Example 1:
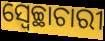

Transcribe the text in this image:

ସ୍ୱେଚ୍ଛାଚାରୀ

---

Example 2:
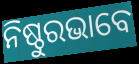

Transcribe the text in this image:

ନିଷ୍ଠୁରଭାବେ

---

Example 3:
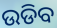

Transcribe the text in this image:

ଉଡିବ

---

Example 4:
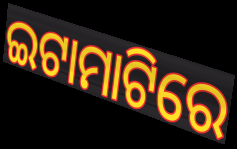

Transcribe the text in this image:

ଇଟାମାଟିରେ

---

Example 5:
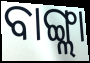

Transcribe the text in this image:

ବାଙ୍ଗ୍ଲା